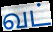
வட்